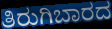
ತಿರುಗಿಬಾರದ